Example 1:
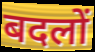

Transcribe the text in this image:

बदलों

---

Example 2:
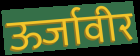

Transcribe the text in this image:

ऊर्जावीर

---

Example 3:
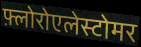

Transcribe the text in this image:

फ़्लोरोएलेस्टोमर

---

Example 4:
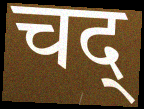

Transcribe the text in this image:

चद्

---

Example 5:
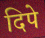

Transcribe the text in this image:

दिपे